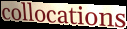
collocations